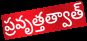
ప్రవృత్తత్వాత్